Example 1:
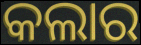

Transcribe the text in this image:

କଲାର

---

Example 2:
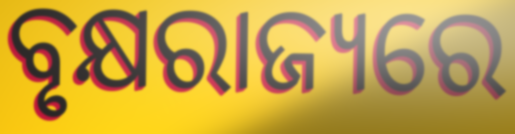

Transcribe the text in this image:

ବୃକ୍ଷରାଜ୍ୟରେ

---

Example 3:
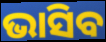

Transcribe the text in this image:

ଭାସିବ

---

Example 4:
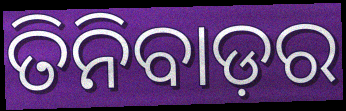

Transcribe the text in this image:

ତିନିବାଡ଼ର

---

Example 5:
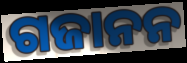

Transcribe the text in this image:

ଗଜାନନ